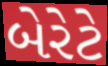
બેરેટે